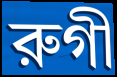
রুগী